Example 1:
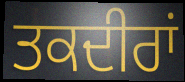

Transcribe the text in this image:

ਤਕਦੀਰਾਂ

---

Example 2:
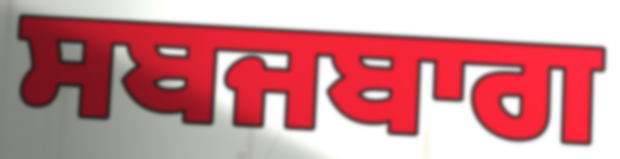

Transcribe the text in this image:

ਸਬਜਬਾਗ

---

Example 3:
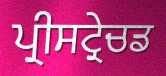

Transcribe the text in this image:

ਪ੍ਰੀਸਟ੍ਰੇਚਡ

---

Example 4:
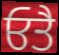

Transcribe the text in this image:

ਓਤੈ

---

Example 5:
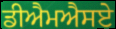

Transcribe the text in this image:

ਡੀਐਮਐਸਏ